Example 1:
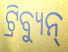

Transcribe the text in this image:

ଟ୍ରିବ୍ୟୁନ୍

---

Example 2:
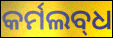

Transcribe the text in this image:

କର୍ମଲବ୍‌ଧ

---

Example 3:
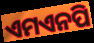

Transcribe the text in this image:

ଏମଏନପି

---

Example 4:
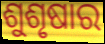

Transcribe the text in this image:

ଶୁଶୃଷାର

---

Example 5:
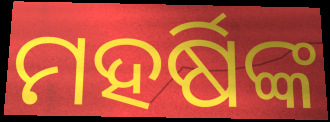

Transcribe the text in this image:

ମହର୍ଷିଙ୍କ